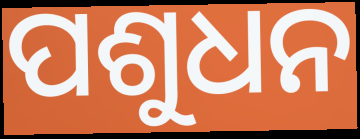
ପଶୁଧନ